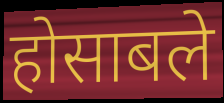
होसाबले